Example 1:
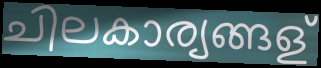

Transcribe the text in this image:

ചിലകാര്യങ്ങള്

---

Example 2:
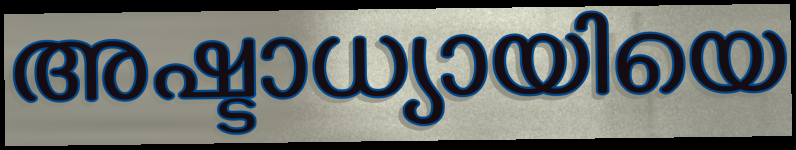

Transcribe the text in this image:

അഷ്ടാധ്യായിയെ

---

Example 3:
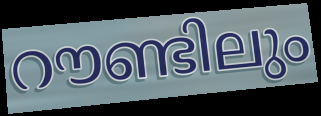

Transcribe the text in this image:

റൗണ്ടിലും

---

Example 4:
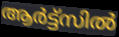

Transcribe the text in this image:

ആർട്ട്സിൽ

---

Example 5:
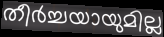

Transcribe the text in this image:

തീർച്ചയായുമില്ല